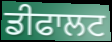
ਡੀਫਾਲਟ